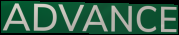
ADVANCE